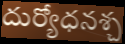
దుర్యోధనశ్చ